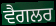
ਵੈਗਲਰ